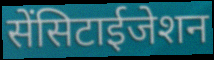
सेंसिटाईजेशन